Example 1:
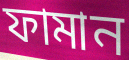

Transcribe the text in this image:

ফামান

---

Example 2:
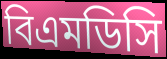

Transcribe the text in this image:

বিএমডিসি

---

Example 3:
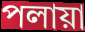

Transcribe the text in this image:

পলায়া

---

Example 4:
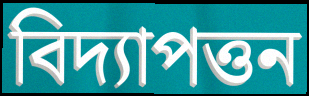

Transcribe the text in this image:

বিদ্যাপত্তন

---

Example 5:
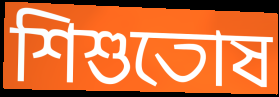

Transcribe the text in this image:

শিশুতোষ